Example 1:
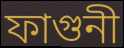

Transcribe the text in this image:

ফাগুনী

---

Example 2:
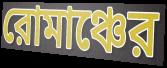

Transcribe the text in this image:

রোমাঞ্চের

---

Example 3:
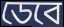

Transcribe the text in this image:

ডেবে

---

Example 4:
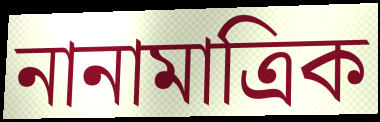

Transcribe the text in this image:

নানামাত্রিক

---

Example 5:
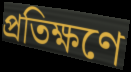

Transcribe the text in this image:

প্রতিক্ষণে